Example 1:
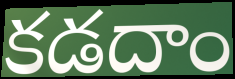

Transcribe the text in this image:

కడదాం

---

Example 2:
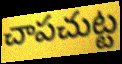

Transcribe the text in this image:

చాపచుట్ట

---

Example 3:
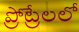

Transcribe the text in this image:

ప్రోట్రేలలో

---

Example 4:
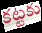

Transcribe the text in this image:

కట్టకు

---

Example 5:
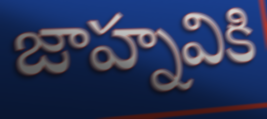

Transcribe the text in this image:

జాహ్నవికి